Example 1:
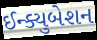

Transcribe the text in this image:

ઈન્ક્યુબેશન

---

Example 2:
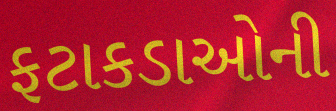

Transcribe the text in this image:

ફટાકડાઓની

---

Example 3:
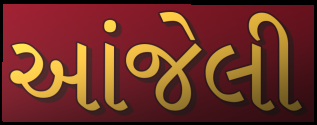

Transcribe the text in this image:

આંજેલી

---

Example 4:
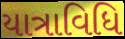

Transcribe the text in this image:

યાત્રાવિધિ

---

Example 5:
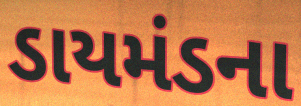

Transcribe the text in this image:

ડાયમંડના